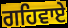
ਗਹਿਵਾਏ